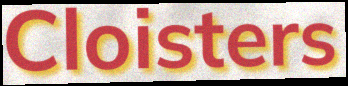
Cloisters